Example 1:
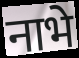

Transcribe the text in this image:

नाभे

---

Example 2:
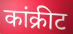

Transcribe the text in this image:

कांक्रीट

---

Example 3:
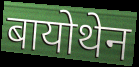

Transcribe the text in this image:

बायोथेन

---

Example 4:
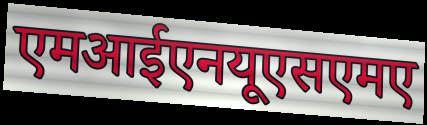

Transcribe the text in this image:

एमआईएनयूएसएमए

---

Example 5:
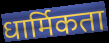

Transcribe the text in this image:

धार्मिकता